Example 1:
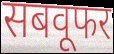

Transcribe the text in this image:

सबवूफर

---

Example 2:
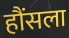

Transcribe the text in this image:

हौंसला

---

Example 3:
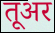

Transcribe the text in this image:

तूअर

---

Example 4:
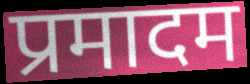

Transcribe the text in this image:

प्रमादम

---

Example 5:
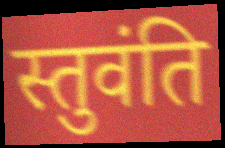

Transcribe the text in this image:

स्तुवंति